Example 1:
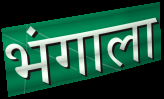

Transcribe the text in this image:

भंगाला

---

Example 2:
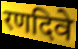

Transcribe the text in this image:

रणदिवे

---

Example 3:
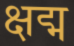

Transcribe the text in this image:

क्षद्म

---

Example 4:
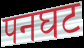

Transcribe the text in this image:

पनघट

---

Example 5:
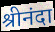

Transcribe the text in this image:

श्रीनंदा